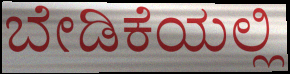
ಬೇಡಿಕೆಯಲ್ಲಿ